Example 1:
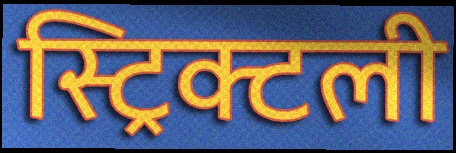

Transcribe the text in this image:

स्ट्रिक्टली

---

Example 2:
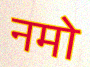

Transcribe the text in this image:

नमो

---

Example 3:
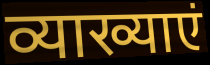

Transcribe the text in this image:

व्याख्याएं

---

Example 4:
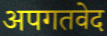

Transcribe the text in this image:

अपगतवेद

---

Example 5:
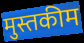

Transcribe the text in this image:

मुस्तकीम